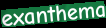
exanthema